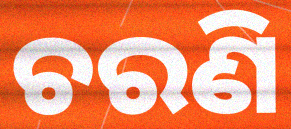
ଚରଣି